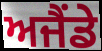
ਅਜੈਂਡੇ